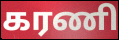
கரணி